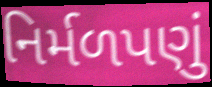
નિર્મળપણું